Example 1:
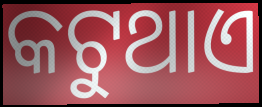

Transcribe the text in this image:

କଟୁଥାଏ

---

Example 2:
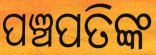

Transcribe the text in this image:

ପଞ୍ଚପତିଙ୍କ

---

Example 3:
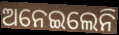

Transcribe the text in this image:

ଅନେଇଲେନି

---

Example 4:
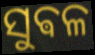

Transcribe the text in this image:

ସୁଵଳ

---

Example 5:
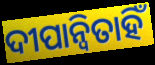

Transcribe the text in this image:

ଦୀପାନ୍ୱିତାହିଁ